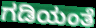
ಗಡಿಯಂತೆ